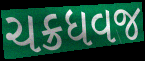
ચક્રધવજ